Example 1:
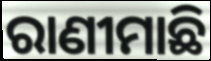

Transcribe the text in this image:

ରାଣୀମାଛି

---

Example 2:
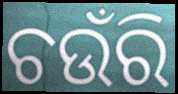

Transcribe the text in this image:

ଚଉଁରି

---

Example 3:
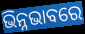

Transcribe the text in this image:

ଭିନ୍ନଭାବରେ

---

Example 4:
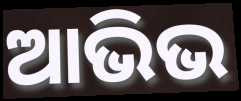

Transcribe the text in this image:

ଆଭିଭ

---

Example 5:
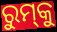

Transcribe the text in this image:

ରୁମ୍‍କୁ